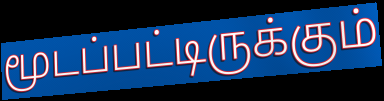
மூடப்பட்டிருக்கும்